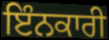
ਇੰਨਕਾਰੀ